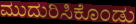
ಮುದುರಿಸಿಕೊಂಡು